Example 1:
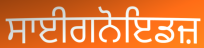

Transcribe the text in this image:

ਸਾਈਗਨੋਇਡਜ਼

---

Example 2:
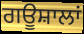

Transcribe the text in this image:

ਗਊਸ਼ਾਲਾਂ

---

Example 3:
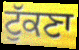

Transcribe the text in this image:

ਟੁੱਕਣਾ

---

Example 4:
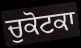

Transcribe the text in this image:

ਚੁਕੋਟਕਾ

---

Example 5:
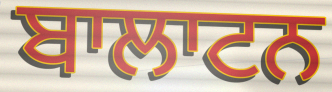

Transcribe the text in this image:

ਬਾਲਾਟਨ